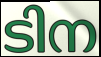
ടിന